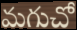
మగుచో